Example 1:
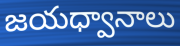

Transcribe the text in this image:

జయధ్వానాలు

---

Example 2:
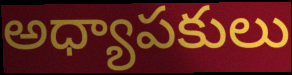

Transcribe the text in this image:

అధ్యాపకులు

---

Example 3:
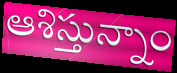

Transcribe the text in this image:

ఆశిస్తున్నాం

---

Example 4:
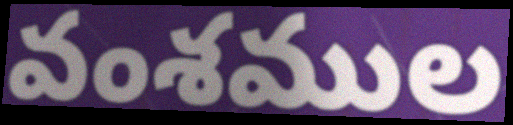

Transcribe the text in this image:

వంశముల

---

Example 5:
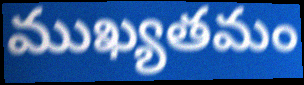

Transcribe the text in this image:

ముఖ్యతమం